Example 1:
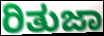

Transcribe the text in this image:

ರಿತುಜಾ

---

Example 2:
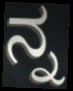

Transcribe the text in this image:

ನ್ನ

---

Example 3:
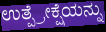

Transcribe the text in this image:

ಉತ್ಪ್ರೇಕ್ಷೆಯನ್ನು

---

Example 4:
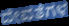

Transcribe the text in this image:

ದೇವತೆಗಳ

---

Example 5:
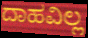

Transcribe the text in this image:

ದಾಹವಿಲ್ಲ